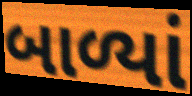
બાળ્યાં